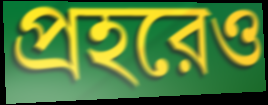
প্রহরেও